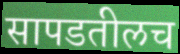
सापडतीलच